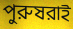
পুরুষরাই